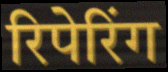
रिपेरिंग